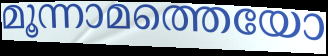
മൂന്നാമത്തെയോ